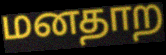
மனதாற